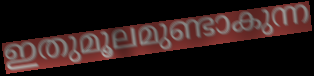
ഇതുമൂലമുണ്ടാകുന്ന